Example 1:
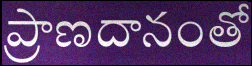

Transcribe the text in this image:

ప్రాణదానంతో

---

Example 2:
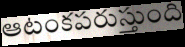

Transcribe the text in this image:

ఆటంకపరుస్తుంది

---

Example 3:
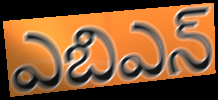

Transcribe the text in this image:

ఎబిఎన్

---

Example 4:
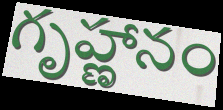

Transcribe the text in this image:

గృహ్ణానం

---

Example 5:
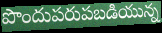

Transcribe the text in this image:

పొందుపరుపబడియున్న